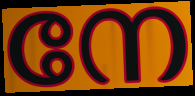
നേ